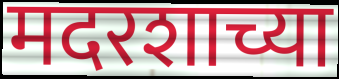
मदरशाच्या